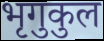
भृगुकुल